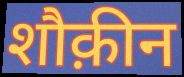
शौक़ीन